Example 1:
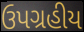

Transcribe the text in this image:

ઉપગ્રહીય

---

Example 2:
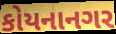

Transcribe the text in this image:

કોયનાનગર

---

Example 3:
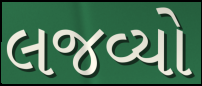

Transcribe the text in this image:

લજવ્યો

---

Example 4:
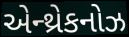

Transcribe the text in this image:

એન્થ્રેકનોઝ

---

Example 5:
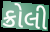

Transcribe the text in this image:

ક્રોલી